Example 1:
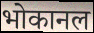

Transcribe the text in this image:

भोकानल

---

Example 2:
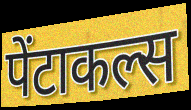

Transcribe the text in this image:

पेंटाकल्स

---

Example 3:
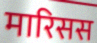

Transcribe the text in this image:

मारिसस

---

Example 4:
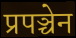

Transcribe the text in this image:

प्रपञ्चेन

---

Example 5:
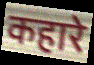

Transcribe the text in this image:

कहारे